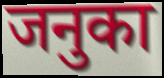
जनुका